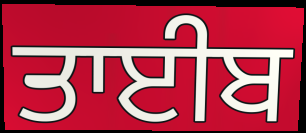
ਤਾਈਬ